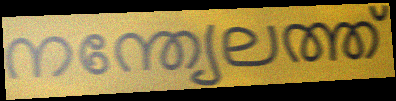
നന്ത്യേലത്ത്